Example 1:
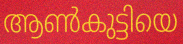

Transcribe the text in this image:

ആൺകുട്ടിയെ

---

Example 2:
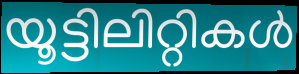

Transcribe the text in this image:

യൂട്ടിലിറ്റികൾ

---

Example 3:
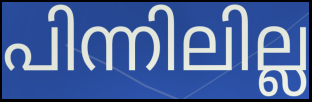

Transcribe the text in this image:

പിന്നിലില്ല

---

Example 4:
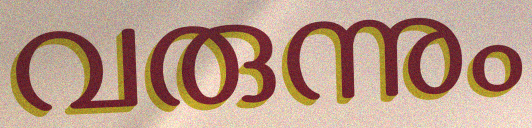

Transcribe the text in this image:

വരുന്നും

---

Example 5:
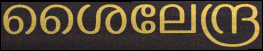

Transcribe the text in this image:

ശൈലേന്ദ്ര